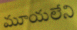
మూయలేని